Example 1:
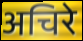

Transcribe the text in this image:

अचिरे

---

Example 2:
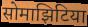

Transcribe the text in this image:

सोमाझिटिया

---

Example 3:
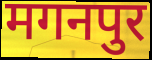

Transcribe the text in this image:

मगनपुर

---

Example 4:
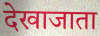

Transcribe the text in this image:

देखाजाता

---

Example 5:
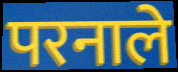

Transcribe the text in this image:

परनाले